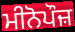
ਮੀਨੋਪੌਜ਼